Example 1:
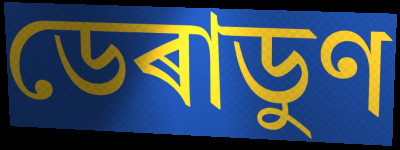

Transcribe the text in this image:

ডেৰাডুণ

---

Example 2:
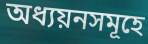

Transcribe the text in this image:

অধ্যয়নসমূহে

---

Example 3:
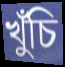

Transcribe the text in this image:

খুঁচি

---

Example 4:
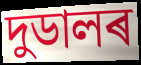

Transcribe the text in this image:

দুডালৰ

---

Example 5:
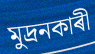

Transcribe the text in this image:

মুদ্ৰনকাৰী